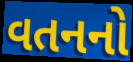
વતનનો